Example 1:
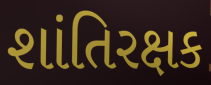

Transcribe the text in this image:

શાંતિરક્ષક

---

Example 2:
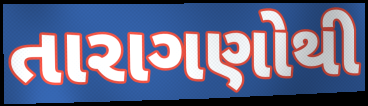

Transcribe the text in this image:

તારાગણોથી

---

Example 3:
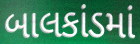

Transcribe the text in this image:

બાલકાંડમાં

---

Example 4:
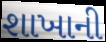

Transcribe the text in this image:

શાખાની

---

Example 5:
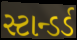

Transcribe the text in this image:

સ્ટાન્ડર્ડ